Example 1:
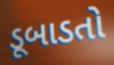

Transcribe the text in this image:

ડૂબાડતો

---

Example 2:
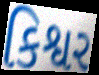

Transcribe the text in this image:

કિશ્વર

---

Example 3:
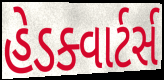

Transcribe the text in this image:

હેડક્વાર્ટર્સ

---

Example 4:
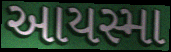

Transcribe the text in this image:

આયસ્મા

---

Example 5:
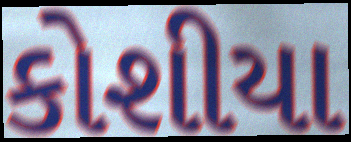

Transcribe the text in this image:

કોશીયા